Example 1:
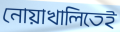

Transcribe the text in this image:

নোয়াখালিতেই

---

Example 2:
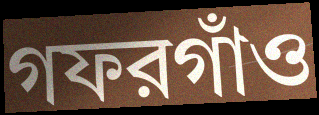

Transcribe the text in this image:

গফরগাঁও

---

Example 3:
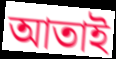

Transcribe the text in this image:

আতাই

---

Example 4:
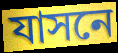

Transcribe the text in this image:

যাসনে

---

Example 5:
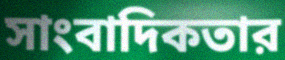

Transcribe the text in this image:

সাংবাদিকতার